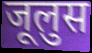
जूलुस